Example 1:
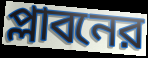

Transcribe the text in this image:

প্লাবনের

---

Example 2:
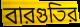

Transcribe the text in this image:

বারগুতির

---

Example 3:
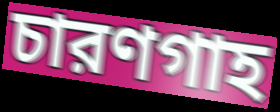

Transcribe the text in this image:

চারণগাহ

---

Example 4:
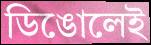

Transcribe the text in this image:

ডিঙোলেই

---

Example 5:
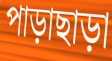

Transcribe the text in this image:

পাড়াছাড়া